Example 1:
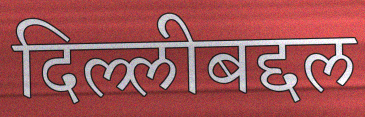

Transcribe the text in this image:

दिल्लीबद्दल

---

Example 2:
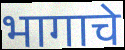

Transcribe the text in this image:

भागाचे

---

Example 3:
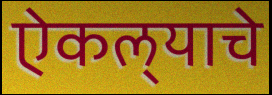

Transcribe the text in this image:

ऐकल्याचे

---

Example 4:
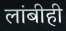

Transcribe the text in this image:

लांबीही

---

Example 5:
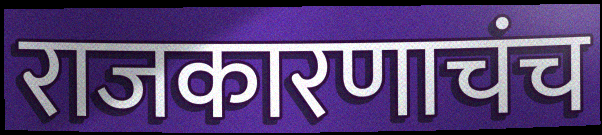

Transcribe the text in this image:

राजकारणाचंच